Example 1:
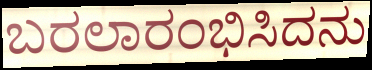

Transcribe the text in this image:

ಬರಲಾರಂಭಿಸಿದನು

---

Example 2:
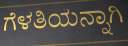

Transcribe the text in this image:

ಗೆಳತಿಯನ್ನಾಗಿ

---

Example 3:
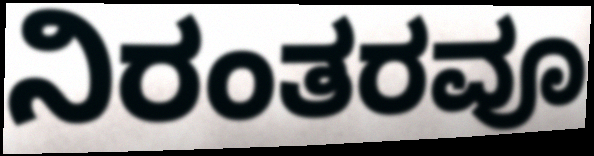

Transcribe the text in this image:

ನಿರಂತರವೂ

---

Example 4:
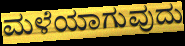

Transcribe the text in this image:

ಮಳೆಯಾಗುವುದು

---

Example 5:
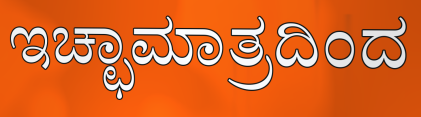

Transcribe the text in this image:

ಇಚ್ಛಾಮಾತ್ರದಿಂದ